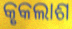
କୃକଲାଶ